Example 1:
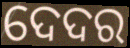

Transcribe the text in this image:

ଦେଦର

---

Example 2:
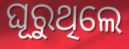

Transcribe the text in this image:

ଘୂରୁଥିଲେ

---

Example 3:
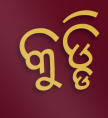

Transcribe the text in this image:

କୁଡ୍ଡି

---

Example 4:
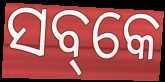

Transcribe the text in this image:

ସବ୍‌କେ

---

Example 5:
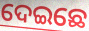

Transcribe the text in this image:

ଦେଇଛେ